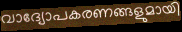
വാദ്യോപകരണങ്ങളുമായി